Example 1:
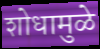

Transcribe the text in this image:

शोधामुळे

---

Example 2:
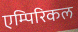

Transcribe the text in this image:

एम्पिरिकल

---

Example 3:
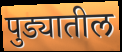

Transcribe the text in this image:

पुड्यातील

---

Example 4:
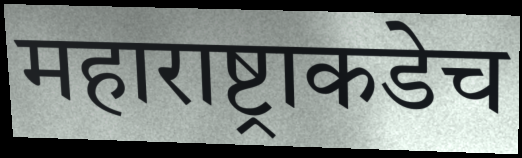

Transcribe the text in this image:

महाराष्ट्राकडेच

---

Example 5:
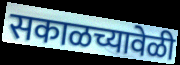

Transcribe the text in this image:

सकाळच्यावेळी